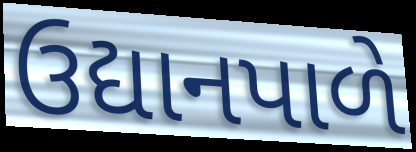
ઉદ્યાનપાળે